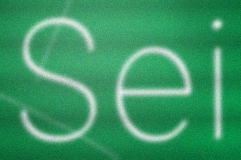
Sei